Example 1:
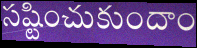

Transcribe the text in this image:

సష్టించుకుందాం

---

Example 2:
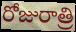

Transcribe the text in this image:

రోజురాత్రి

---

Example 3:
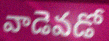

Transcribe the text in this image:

వాడెవడో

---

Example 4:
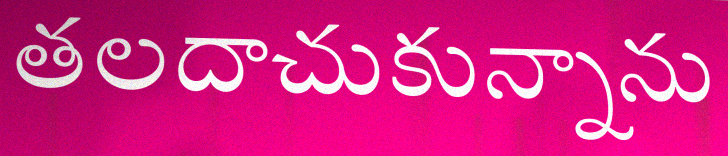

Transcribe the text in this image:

తలదాచుకున్నాను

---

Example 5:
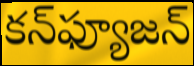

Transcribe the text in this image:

కన్‌ఫ్యూజన్